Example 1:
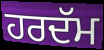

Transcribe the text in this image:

ਹਰਦੱਮ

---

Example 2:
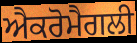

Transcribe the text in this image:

ਐਕਰੋਮੈਗਲੀ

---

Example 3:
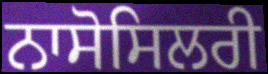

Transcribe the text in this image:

ਨਾਸੋਸਿਲਰੀ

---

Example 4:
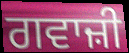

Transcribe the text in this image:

ਗਵਾਜ਼ੀ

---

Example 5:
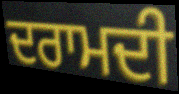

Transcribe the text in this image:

ਦਰਾਮਦੀ